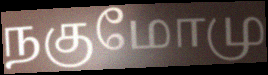
நகுமோமு